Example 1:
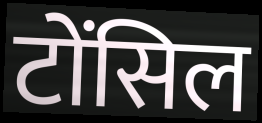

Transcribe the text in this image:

टोंसिल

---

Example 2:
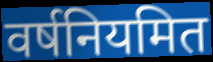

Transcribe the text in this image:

वर्षनियमित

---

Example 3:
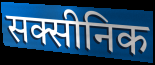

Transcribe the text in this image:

सक्सीनिक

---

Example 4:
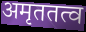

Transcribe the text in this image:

अमृततत्व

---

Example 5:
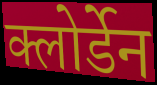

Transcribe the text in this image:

क्लोर्डेन